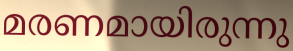
മരണമായിരുന്നു